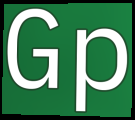
Gp